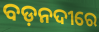
ବଡ଼ନଦୀରେ